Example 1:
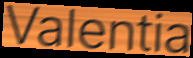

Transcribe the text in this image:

Valentia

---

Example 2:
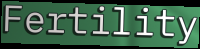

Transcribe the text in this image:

Fertility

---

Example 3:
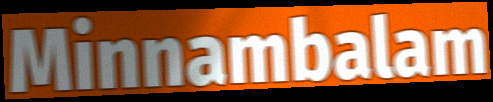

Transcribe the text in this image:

Minnambalam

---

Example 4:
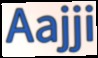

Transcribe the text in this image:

Aajji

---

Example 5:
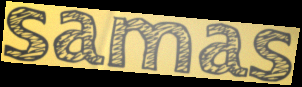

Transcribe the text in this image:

samas